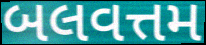
બલવત્તમ